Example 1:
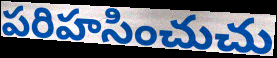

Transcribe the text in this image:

పరిహసించుచు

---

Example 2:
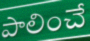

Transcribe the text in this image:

పాలించే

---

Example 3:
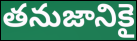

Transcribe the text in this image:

తనుజానికై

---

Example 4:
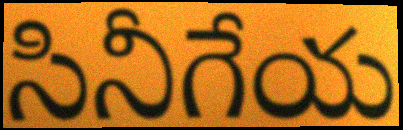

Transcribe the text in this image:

సినీగేయ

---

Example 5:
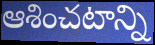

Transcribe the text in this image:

ఆశించటాన్ని